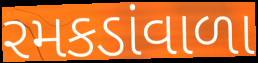
રમકડાંવાળા